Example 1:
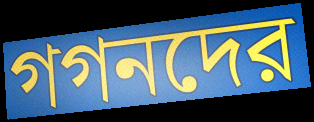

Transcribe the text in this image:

গগনদের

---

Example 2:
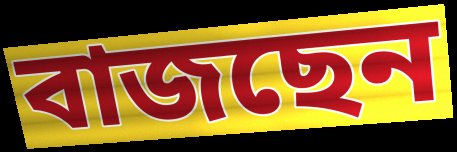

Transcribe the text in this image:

বাজছেন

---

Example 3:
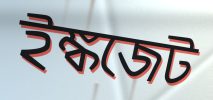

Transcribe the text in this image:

ইঙ্কজেট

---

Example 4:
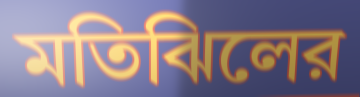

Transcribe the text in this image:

মতিঝিলের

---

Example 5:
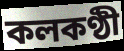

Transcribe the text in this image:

কলকণ্ঠী